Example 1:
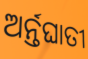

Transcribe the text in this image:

ଅର୍ନ୍ତଘାତୀ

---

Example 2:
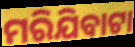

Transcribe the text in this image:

ମରିଯିବାଟା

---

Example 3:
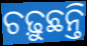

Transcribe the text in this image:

ଚଢ଼ୁଛନ୍ତି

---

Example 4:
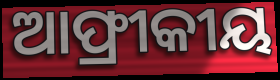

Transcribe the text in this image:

ଆଫ୍ରୀକୀୟ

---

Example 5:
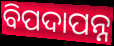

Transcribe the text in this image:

ବିପଦାପନ୍ନ